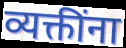
व्यक्तींना